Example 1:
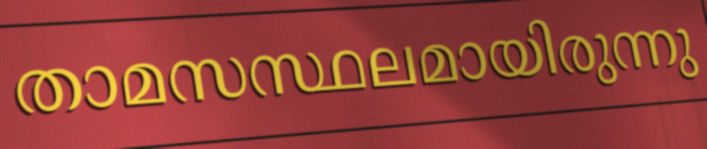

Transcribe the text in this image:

താമസസ്ഥലമായിരുന്നു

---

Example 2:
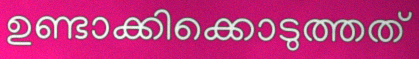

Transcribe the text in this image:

ഉണ്ടാക്കിക്കൊടുത്തത്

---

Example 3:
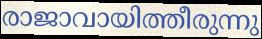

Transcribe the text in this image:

രാജാവായിത്തീരുന്നു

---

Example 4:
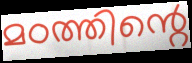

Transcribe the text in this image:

മഠത്തിന്റെ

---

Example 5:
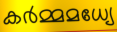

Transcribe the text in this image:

കർമ്മമധ്യേ